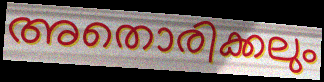
അതൊരിക്കലും